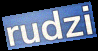
rudzi